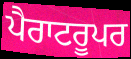
ਪੈਰਾਟਰੂਪਰ